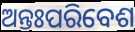
ଅନ୍ତଃପରିବେଶ